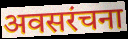
अवसरंचना